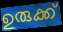
ഉരുക്ക്